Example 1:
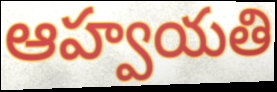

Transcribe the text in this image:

ఆహ్వయతి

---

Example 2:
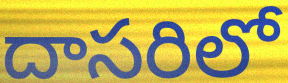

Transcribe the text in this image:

దాసరిలో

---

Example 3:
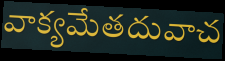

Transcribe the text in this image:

వాక్యమేతదువాచ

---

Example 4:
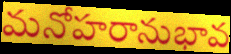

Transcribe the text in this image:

మనోహరానుభావ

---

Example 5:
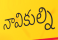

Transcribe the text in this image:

నావికుల్ని